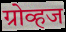
ग्रोव्हज